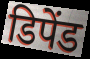
डिपेंड